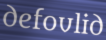
defoulid